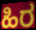
ಹಿರ